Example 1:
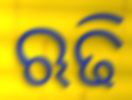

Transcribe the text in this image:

ଋଢି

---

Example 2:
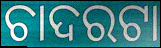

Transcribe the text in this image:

ଚାଦରଟା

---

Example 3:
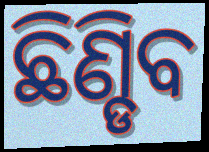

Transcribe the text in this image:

ଛିଣ୍ଡିବ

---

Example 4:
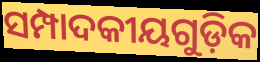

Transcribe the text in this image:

ସମ୍ପାଦକୀୟଗୁଡ଼ିକ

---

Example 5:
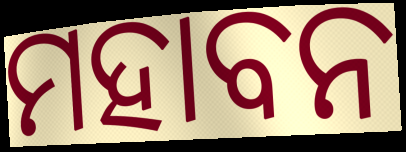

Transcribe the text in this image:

ମହାବନ